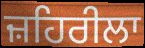
ਜ਼ਹਿਰੀਲਾ